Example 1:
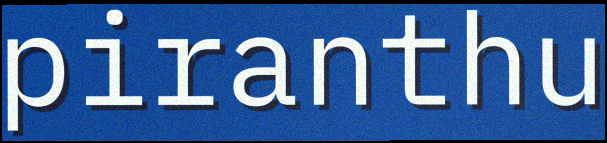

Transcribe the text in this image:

piranthu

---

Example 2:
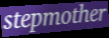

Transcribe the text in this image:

stepmother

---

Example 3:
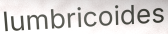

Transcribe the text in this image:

lumbricoides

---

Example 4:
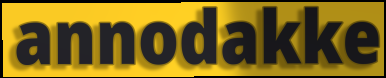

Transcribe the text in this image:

annodakke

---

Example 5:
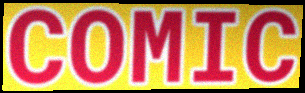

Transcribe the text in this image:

COMIC